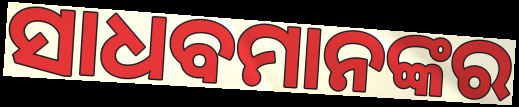
ସାଧବମାନଙ୍କର